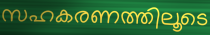
സഹകരണത്തിലൂടെ